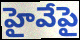
హైవేపై